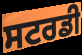
ਸਟਰਡੀ